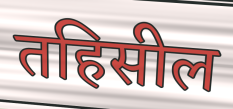
तहिसील